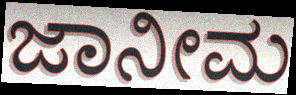
ಜಾನೀಮ